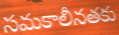
సమకాలీనతకు